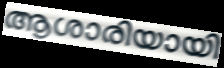
ആശാരിയായി